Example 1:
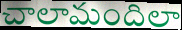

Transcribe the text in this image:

చాలామందిలా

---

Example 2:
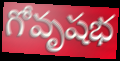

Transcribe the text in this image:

గోవృషభ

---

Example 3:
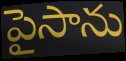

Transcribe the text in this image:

పైసాను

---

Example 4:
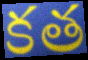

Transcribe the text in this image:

కత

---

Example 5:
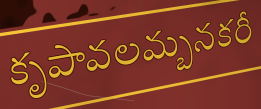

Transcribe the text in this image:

కృపావలమ్బనకరీ